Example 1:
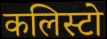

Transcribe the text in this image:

कलिस्टो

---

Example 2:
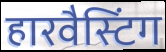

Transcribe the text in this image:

हारवैस्टिंग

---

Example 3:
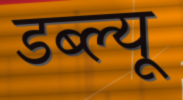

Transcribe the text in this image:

डब्ल्यू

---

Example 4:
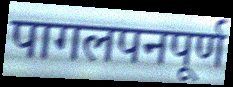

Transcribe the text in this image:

पागलपनपूर्ण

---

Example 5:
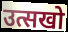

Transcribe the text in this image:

उत्सखो